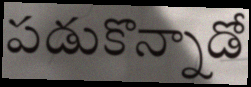
పడుకొన్నాడో